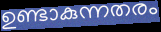
ഉണ്ടാകുന്നതരം